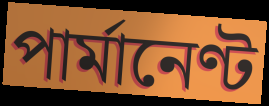
পাৰ্মানেণ্ট